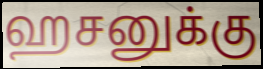
ஹசனுக்கு